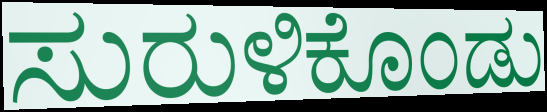
ಸುರುಳಿಕೊಂಡು